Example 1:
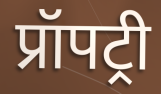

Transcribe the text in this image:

प्रॉपट्री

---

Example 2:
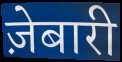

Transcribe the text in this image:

ज़ेबारी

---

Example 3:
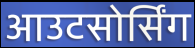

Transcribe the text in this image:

आउटसोर्सिंग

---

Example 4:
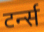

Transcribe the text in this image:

टर्न्स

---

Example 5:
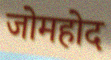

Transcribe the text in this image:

जोमहोद